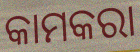
କାମକରା